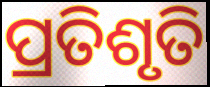
ପ୍ରତିଶୃତି